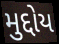
મુદ્દોય